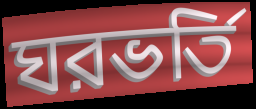
ঘরভর্তি